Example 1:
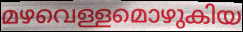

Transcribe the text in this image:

മഴവെള്ളമൊഴുകിയ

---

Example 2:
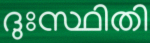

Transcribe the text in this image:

ദുഃസ്ഥിതി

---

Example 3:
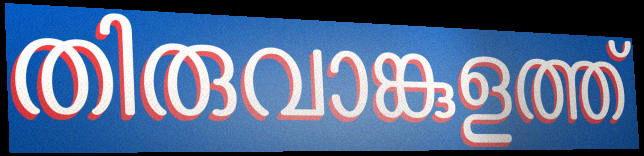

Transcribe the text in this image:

തിരുവാങ്കുളത്ത്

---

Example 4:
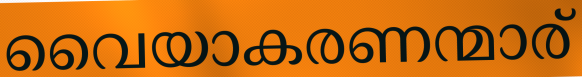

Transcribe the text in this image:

വൈയാകരണന്മാര്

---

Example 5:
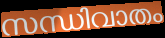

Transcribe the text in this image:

സന്ധിവാതം